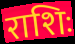
राशिः